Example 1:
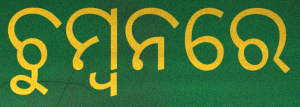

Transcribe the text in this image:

ଚୁମ୍ବନରେ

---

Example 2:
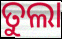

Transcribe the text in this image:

ତୁଲା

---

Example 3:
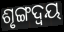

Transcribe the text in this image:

ଶୃଙ୍ଗଦ୍ୱୟ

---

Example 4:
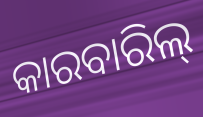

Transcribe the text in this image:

କାରବାରିଲ୍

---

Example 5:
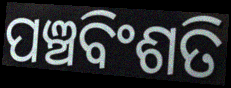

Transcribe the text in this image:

ପଞ୍ଚବିଂଶତି